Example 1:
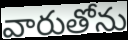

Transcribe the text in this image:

వారుతోను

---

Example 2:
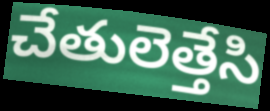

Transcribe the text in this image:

చేతులెత్తేసి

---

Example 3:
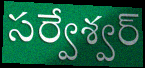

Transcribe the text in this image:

సర్వేశ్వర్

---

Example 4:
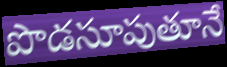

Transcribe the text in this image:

పొడసూపుతూనే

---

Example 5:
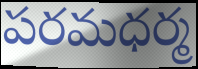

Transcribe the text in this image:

పరమధర్మ